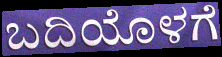
ಬದಿಯೊಳಗೆ